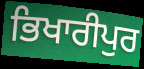
ਭਿਖਾਰੀਪੁਰ